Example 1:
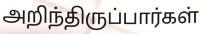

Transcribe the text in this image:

அறிந்திருப்பார்கள்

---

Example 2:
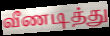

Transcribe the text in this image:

வீணடித்து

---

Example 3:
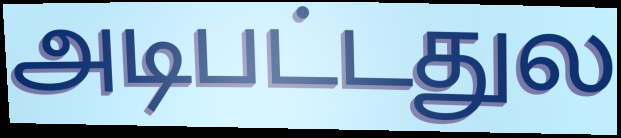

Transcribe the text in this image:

அடிபட்டதுல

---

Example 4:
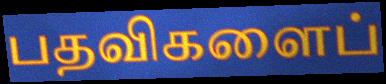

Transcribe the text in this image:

பதவிகளைப்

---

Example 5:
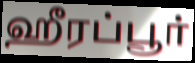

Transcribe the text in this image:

ஹீரப்பூர்